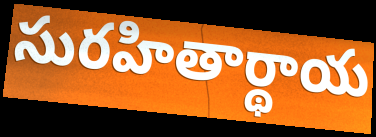
సురహితార్థాయ